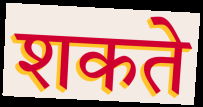
शकते